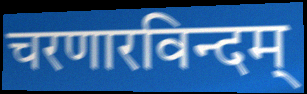
चरणारविन्दम्